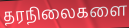
தரநிலைகளை